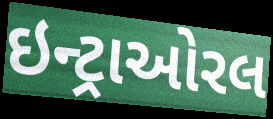
ઇન્ટ્રાઓરલ